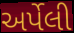
અર્પેલી